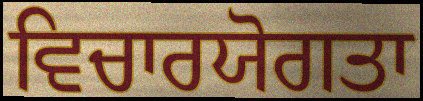
ਵਿਚਾਰਯੋਗਤਾ